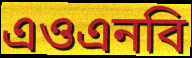
এওএনবি